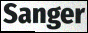
Sanger